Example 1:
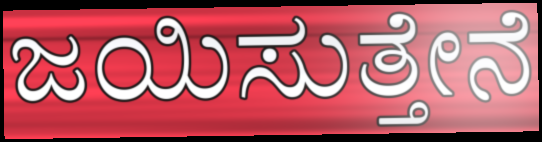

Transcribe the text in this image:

ಜಯಿಸುತ್ತೇನೆ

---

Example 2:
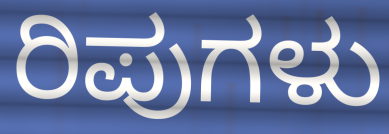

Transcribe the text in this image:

ರಿಪುಗಳು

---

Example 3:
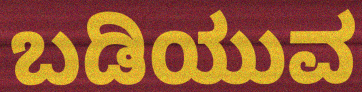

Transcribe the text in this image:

ಬಡಿಯುವ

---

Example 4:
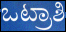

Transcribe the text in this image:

ಒಟ್ರಾಶಿ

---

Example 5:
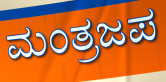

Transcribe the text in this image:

ಮಂತ್ರಜಪ